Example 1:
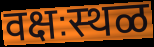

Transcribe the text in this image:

वक्षःस्थळ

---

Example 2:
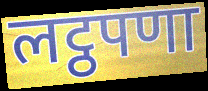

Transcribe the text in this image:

लट्ठपणा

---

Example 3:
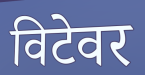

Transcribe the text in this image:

विटेवर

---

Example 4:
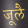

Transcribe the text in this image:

जूलै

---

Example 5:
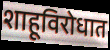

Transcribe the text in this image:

शाहूविरोधात